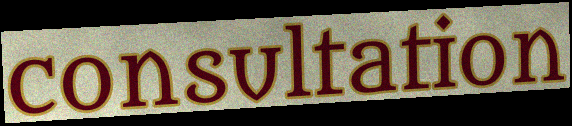
consultation